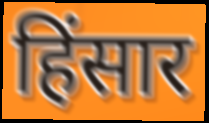
हिंसार